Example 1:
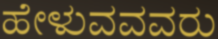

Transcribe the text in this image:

ಹೇಳುವವವರು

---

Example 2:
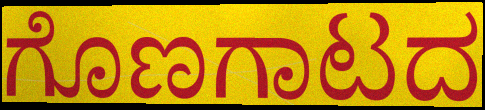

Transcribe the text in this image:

ಗೊಣಗಾಟದ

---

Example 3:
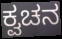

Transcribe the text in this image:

ಕ್ವಚನ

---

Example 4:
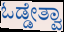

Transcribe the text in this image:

ಓಡ್ಡೇತ್ವಾ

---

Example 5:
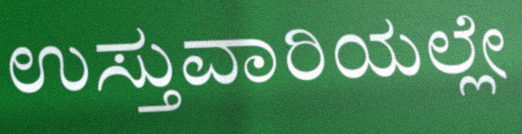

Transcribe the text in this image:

ಉಸ್ತುವಾರಿಯಲ್ಲೇ